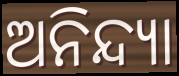
ଅନିନ୍ଦ୍ୟା